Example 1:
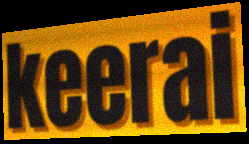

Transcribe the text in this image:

keerai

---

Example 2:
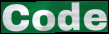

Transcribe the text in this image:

Code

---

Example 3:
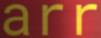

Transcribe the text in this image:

arr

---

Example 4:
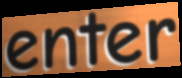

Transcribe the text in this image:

enter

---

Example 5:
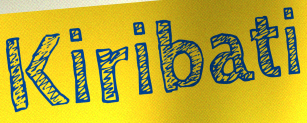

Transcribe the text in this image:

Kiribati